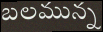
బలమున్న